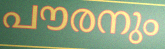
പൗരനും